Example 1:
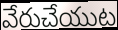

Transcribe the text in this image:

వేరుచేయుట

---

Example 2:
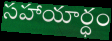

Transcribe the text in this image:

సహాయార్ధం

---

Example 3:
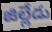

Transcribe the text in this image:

జిల్లేడు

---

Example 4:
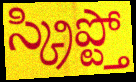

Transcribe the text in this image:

స్క్రిప్ట్తో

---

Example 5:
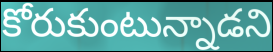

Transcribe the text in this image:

కోరుకుంటున్నాడని